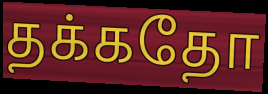
தக்கதோ